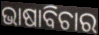
ଭାଷାବିଚାର